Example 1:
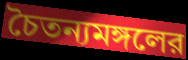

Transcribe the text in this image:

চৈতন্যমঙ্গলের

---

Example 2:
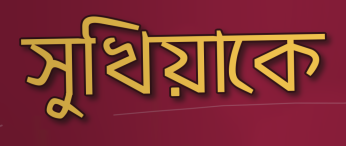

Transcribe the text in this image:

সুখিয়াকে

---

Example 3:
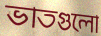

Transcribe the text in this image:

ভাতগুলো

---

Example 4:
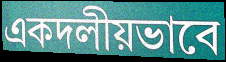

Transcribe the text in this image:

একদলীয়ভাবে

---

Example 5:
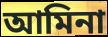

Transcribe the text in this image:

আমিনা